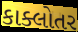
કાક્લોતર